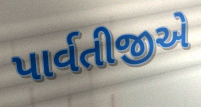
પાર્વતીજીએ